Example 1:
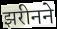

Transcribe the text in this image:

झरीनने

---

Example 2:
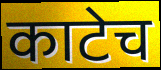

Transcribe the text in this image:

काटेच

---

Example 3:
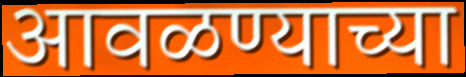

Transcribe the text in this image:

आवळण्याच्या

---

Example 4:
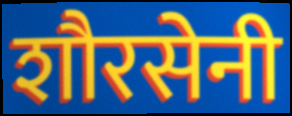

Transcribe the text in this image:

शौरसेनी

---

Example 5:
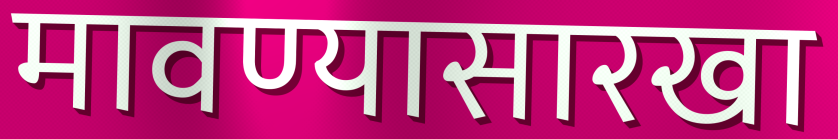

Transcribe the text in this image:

मावण्यासारखा